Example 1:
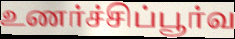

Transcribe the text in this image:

உணர்ச்சிப்பூர்வ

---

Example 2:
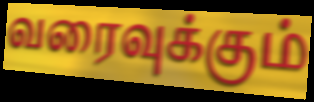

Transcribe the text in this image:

வரைவுக்கும்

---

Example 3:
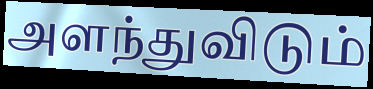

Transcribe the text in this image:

அளந்துவிடும்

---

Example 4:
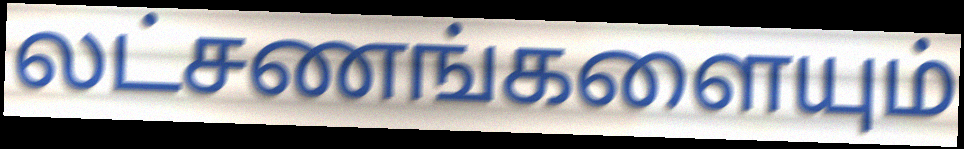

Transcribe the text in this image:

லட்சணங்களையும்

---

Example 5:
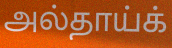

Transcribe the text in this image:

அல்தாய்க்